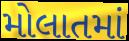
મોલાતમાં